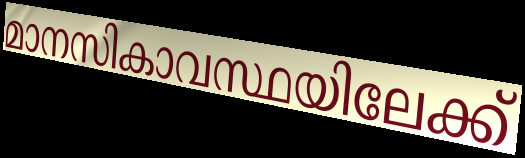
മാനസികാവസ്ഥയിലേക്ക്